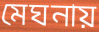
মেঘনায়